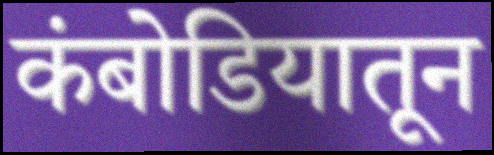
कंबोडियातून